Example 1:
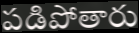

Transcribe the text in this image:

పడిపోతారు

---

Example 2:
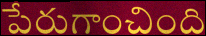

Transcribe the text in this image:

పేరుగాంచింది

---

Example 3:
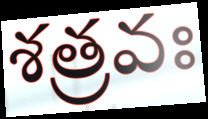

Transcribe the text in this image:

శత్రవః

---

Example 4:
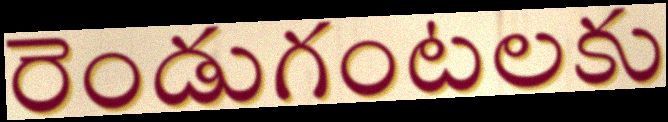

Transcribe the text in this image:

రెండుగంటలకు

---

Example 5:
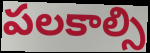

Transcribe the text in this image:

పలకాల్సి